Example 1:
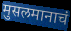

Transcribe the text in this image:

मुसलमानाचं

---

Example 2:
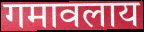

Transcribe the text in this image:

गमावलाय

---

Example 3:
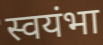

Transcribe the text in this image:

स्वयंभा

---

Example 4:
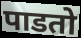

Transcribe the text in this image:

पाडतो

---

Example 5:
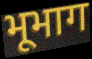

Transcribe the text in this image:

भूभाग